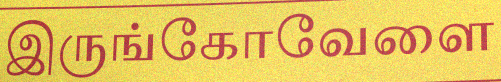
இருங்கோவேளை